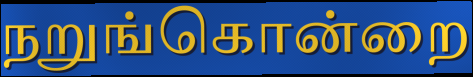
நறுங்கொன்றை